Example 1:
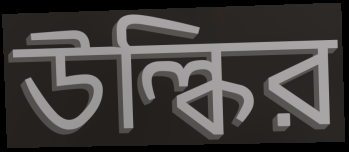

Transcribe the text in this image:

উল্কির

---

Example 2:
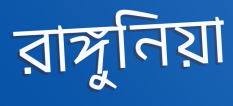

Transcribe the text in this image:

রাঙ্গুনিয়া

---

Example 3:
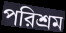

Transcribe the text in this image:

পরিশ্রম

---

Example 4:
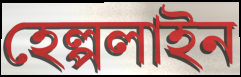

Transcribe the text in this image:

হেল্পলাইন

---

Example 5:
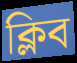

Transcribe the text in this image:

ক্লিব